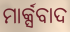
ମାର୍କ୍ସବାଦ